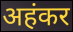
अहंकर